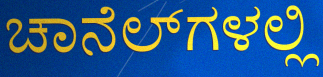
ಚಾನೆಲ್‍ಗಳಲ್ಲಿ